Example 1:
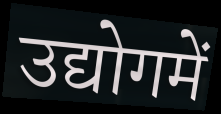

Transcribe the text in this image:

उद्योगमें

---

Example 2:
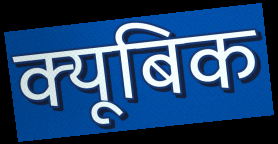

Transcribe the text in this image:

क्‍यूबिक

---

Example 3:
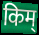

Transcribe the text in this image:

किम्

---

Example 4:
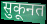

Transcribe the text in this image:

सुकूनत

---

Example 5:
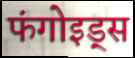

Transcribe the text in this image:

फंगोइड्स